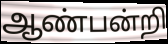
ஆண்பன்றி